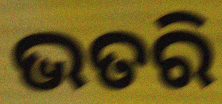
ଭତରି